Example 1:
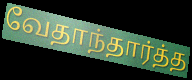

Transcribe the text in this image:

வேதாந்தார்த்த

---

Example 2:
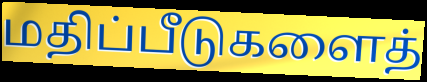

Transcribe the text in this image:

மதிப்பீடுகளைத்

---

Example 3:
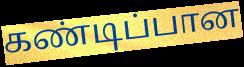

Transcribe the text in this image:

கண்டிப்பான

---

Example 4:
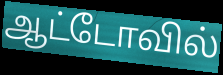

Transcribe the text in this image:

ஆட்டோவில்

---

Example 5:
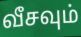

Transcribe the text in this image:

வீசவும்